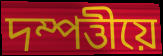
দম্পত্তীয়ে